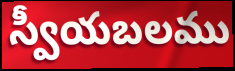
స్వీయబలము